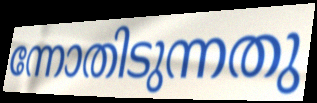
ന്നോതിടുന്നതു